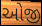
ઓજી